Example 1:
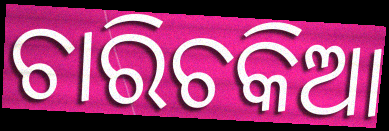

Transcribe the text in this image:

ଚାରିଚକିଆ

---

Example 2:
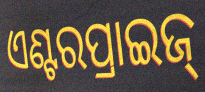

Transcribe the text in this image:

ଏଣ୍ଟରପ୍ରାଇଜ୍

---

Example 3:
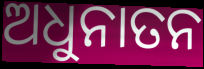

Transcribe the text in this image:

ଅଧୁନାତନ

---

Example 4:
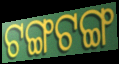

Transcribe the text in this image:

ଟଙ୍ଗଟଙ୍ଗ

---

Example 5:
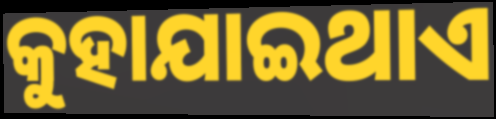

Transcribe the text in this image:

କୁହାଯାଇଥାଏ